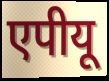
एपीयू